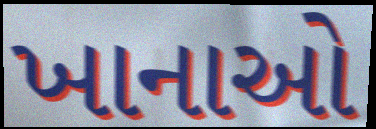
ખાનાઓ